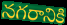
నగరానికి